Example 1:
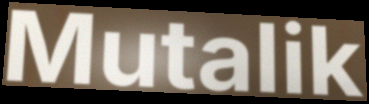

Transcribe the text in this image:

Mutalik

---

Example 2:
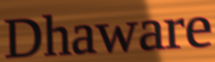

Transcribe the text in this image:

Dhaware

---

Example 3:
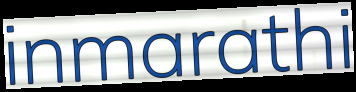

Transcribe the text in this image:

inmarathi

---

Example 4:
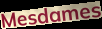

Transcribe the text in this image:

Mesdames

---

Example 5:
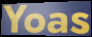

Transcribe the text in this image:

Yoas